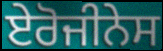
ਏਰੋਜੀਨੇਸ